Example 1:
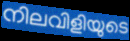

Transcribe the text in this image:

നിലവിളിയുടെ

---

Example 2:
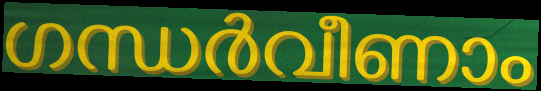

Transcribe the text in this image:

ഗന്ധർവീണാം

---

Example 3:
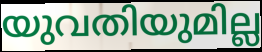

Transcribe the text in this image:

യുവതിയുമില്ല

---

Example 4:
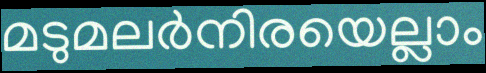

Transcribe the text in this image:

മടുമലർനിരയെല്ലാം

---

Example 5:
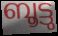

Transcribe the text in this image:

ബൂട്ടു